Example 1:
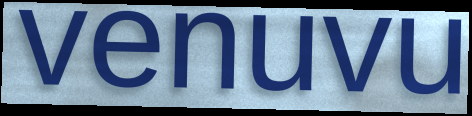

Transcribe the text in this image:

venuvu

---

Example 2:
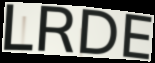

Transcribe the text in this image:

LRDE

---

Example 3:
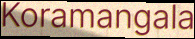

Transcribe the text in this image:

Koramangala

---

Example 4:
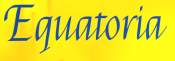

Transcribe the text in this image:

Equatoria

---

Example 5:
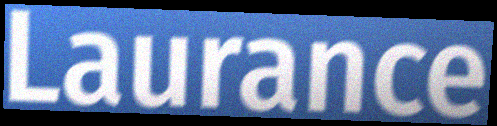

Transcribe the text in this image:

Laurance